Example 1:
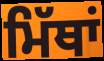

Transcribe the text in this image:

ਮਿੱਥਾਂ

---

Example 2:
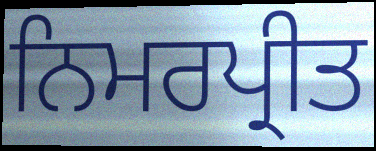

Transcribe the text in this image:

ਨਿਮਰਪ੍ਰੀਤ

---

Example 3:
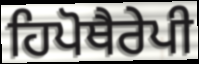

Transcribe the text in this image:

ਹਿਪੋਥੈਰੇਪੀ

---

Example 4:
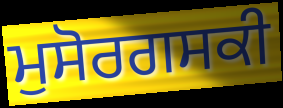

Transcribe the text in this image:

ਮੁਸੋਰਗਸਕੀ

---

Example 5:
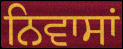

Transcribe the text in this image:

ਨਿਵਾਸਾਂ